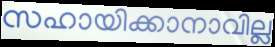
സഹായിക്കാനാവില്ല